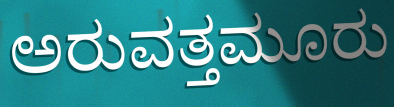
ಅರುವತ್ತಮೂರು